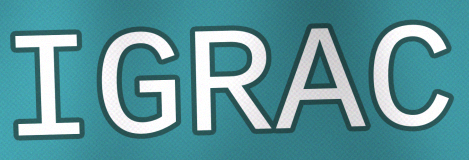
IGRAC